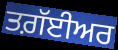
ਤਗ਼ੱਈਅਰ